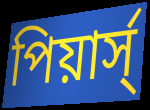
পিয়ার্স্